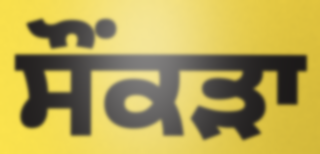
ਸੌਂਕੜਾ